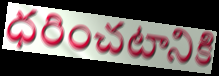
ధరించటానికి